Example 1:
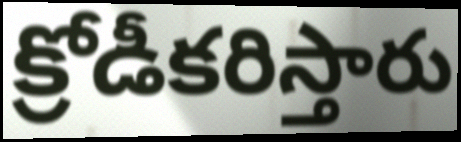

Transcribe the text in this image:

క్రోడీకరిస్తారు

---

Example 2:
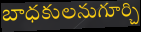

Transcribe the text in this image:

బాధకులనుగూర్చి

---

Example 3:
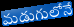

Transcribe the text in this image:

మడుగులోనే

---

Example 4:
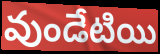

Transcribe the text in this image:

వుండేటియి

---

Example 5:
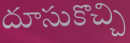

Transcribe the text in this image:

దూసుకొచ్చి